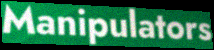
Manipulators